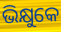
ଭିକ୍ଷୁକେ